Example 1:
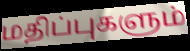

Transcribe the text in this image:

மதிப்புகளும்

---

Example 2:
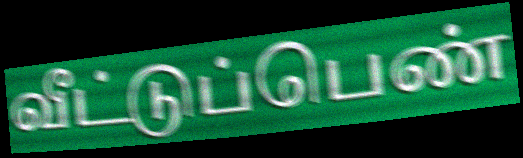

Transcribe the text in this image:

வீட்டுப்பெண்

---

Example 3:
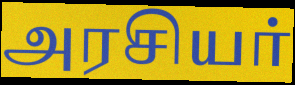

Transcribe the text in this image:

அரசியர்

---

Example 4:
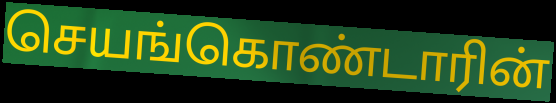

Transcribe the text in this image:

செயங்கொண்டாரின்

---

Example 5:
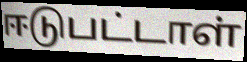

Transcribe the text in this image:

ஈடுபட்டாள்